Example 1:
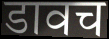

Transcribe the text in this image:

डावच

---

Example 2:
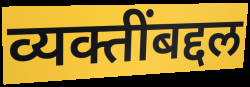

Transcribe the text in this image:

व्यक्तींबद्दल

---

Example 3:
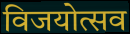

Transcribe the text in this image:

विजयोत्सव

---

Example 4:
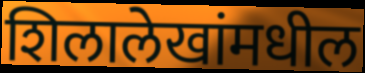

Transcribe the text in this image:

शिलालेखांमधील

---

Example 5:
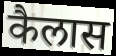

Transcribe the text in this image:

कैलास